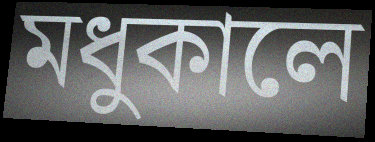
মধুকালে